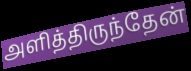
அளித்திருந்தேன்